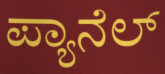
ಪ್ಯಾನೆಲ್